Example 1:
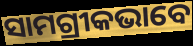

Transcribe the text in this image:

ସାମଗ୍ରୀକଭାବେ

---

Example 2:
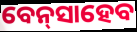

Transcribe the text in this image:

ବେନ୍‌ସାହେବ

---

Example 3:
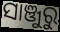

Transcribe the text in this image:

ସାଞ୍ଜୁରୁ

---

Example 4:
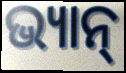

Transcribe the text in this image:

ଭ୍ୟାନ୍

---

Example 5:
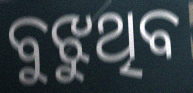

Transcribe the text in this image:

ବୁଝୁଥିବ